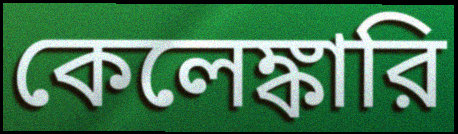
কেলেঙ্কারি